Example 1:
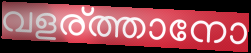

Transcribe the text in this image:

വളര്ത്താനോ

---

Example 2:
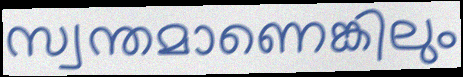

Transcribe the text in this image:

സ്വന്തമാണെങ്കിലും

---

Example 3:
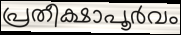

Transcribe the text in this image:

പ്രതീക്ഷാപൂർവം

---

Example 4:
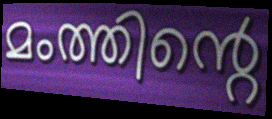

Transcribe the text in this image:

മംത്തിന്റെ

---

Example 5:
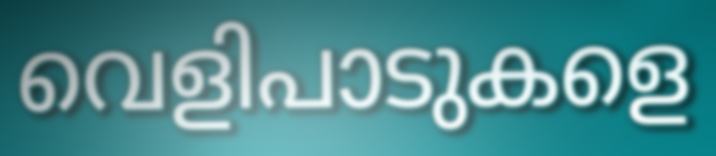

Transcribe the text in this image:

വെളിപാടുകളെ